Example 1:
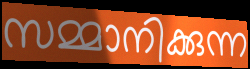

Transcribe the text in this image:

സമ്മാനിക്കുന്ന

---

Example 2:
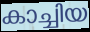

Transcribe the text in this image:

കാച്ചിയ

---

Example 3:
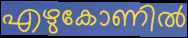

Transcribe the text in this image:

എഴുകോണിൽ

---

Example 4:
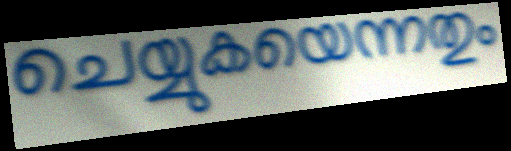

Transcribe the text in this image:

ചെയ്യുകയെന്നതും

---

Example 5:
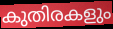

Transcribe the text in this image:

കുതിരകളും